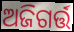
ଅଜିଗର୍ତ୍ତ